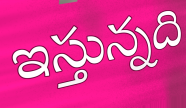
ఇస్తున్నది